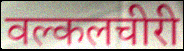
वल्कलचीरी